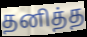
தனித்த